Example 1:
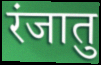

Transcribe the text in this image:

रंजातु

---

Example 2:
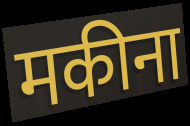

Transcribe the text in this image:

मकीना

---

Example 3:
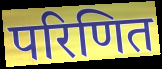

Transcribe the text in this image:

परिणित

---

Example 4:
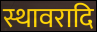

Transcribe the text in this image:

स्थावरादि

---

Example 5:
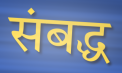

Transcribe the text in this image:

संबद्ध